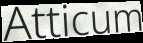
Atticum